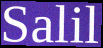
Salil